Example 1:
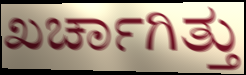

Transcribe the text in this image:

ಖರ್ಚಾಗಿತ್ತು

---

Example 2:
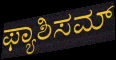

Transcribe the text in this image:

ಫ್ಯಾಶಿಸಮ್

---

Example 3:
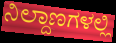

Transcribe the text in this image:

ನಿಲ್ದಾಣಗಳಲ್ಲಿ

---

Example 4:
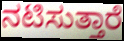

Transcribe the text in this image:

ನಟಿಸುತ್ತಾರೆ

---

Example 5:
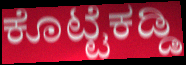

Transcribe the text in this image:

ಕೊಟ್ಟೆಕಡ್ಡಿ